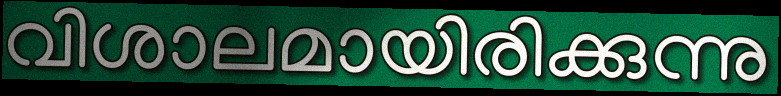
വിശാലമായിരിക്കുന്നു